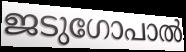
ജടുഗോപാൽ